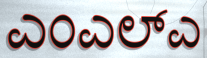
ಎಂಎಲ್ಎ